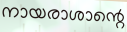
നായരാശാന്റെ